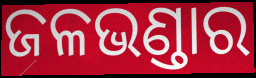
ଜଳଭଣ୍ଡାର